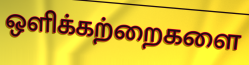
ஒளிக்கற்றைகளை